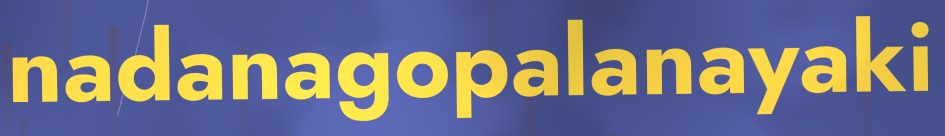
nadanagopalanayaki